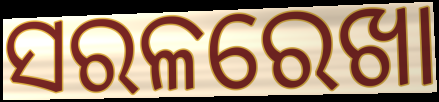
ସରଳରେଖା